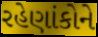
રહેણાંકોને